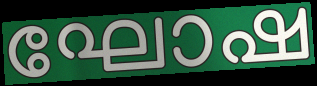
ഘോഷ